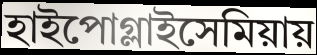
হাইপোগ্লাইসেমিয়ায়